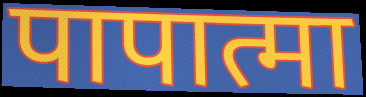
पापात्मा